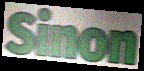
Sinon